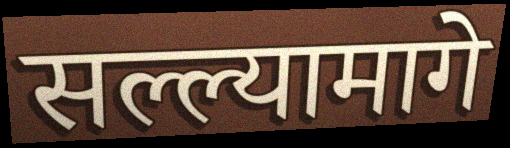
सल्ल्यामागे